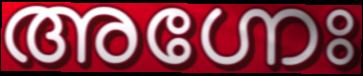
അഗ്നേഃ